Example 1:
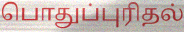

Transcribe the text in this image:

பொதுப்புரிதல்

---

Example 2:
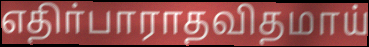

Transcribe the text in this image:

எதிர்பாராதவிதமாய்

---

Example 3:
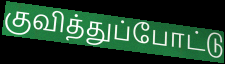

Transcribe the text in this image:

குவித்துப்போட்டு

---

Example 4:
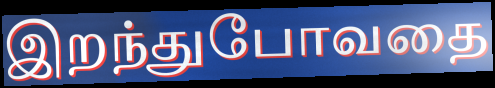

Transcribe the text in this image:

இறந்துபோவதை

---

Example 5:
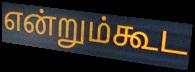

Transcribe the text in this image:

என்றும்கூட